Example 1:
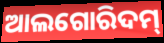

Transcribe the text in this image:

ଆଲଗୋରିଦମ୍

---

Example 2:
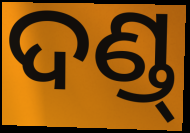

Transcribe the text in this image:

ଦଣ୍ଡ୍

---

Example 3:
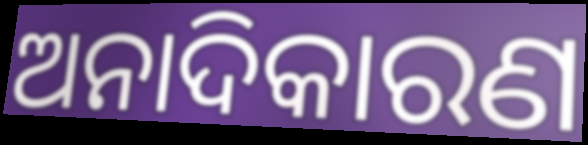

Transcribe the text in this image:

ଅନାଦିକାରଣ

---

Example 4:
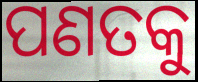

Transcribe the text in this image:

ପଣତକୁ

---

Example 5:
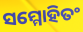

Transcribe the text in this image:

ସମ୍ମୋହିତଂ